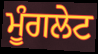
ਮੂੰਗਲੇਟ